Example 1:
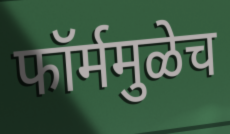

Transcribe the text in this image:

फॉर्ममुळेच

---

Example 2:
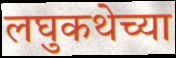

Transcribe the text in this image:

लघुकथेच्या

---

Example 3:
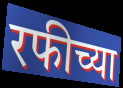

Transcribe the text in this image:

रफीच्या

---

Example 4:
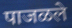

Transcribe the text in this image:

पाजळले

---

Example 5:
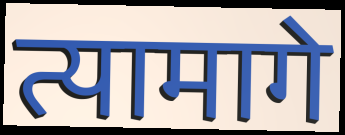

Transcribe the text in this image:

त्यामागे